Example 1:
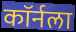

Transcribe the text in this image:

कॉर्नला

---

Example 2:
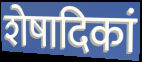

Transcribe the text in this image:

शेषादिकां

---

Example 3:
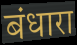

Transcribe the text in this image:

बंधारा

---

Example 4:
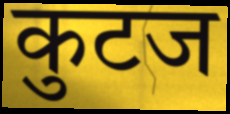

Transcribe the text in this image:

कुटज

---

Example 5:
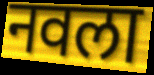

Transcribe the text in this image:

नवला